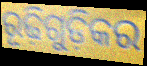
ରୂଢ଼ିଗୁଡ଼ିକର